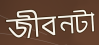
জীবনটা